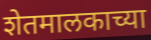
शेतमालकाच्या